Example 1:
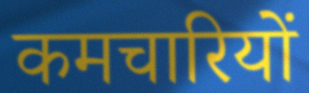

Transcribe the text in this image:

कमचारियों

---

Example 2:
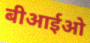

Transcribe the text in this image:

बीआईओ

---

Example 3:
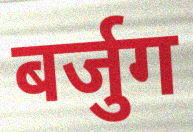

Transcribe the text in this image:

बर्जुग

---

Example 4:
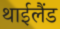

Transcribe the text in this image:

थाईलैंड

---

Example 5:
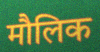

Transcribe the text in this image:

मौलिक